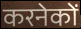
करनेकों